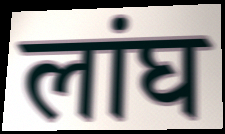
लांघ